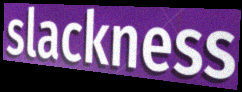
slackness